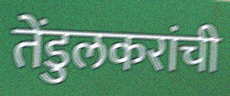
तेंडुलकरांची